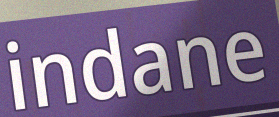
indane